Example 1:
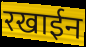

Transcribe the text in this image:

रखाईन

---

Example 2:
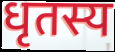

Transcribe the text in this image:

धृतस्य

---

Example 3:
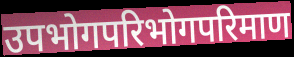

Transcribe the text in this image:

उपभोगपरिभोगपरिमाण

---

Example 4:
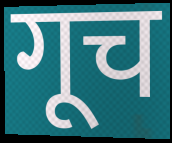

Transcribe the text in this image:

गूच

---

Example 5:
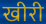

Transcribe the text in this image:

खीरी